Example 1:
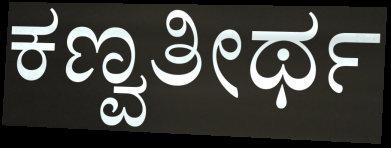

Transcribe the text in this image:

ಕಣ್ವತೀರ್ಥ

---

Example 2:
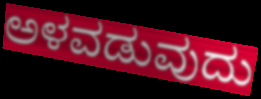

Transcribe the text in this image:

ಅಳವಡುವುದು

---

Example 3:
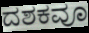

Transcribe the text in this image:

ದಶಕವೂ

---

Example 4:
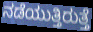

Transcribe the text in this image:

ನಡೆಯುತ್ತಿರುತ್ತೆ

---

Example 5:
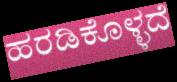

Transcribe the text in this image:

ಹರಡಿಕೊಳ್ಳದೆ